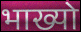
भाख्यो